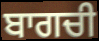
ਬਾਗਚੀ